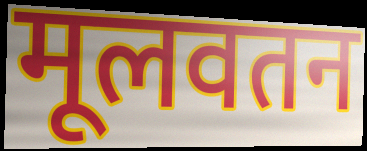
मूलवतन